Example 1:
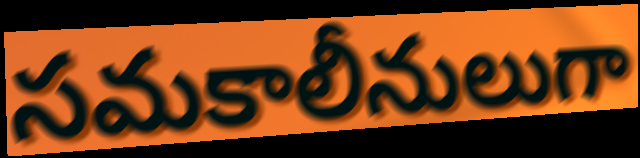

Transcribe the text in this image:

సమకాలీనులుగా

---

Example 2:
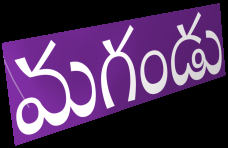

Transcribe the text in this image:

మగండు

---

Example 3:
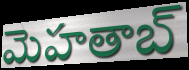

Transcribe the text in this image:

మెహతాబ్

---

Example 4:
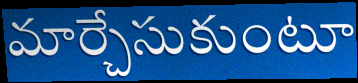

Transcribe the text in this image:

మార్చేసుకుంటూ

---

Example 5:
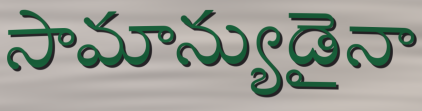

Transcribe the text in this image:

సామాన్యుడైనా